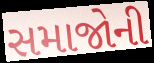
સમાજોની